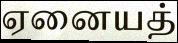
ஏனையத்